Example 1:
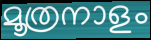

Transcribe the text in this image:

മൂത്രനാളം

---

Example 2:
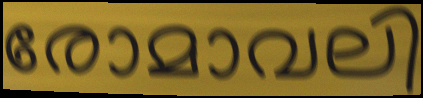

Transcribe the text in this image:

രോമാവലി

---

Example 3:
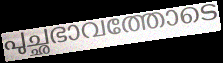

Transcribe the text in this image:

പുച്ഛഭാവത്തോടെ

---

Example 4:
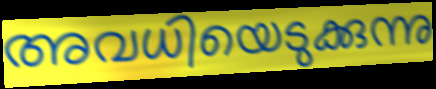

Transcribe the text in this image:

അവധിയെടുക്കുന്നു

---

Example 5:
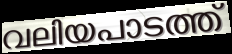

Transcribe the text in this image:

വലിയപാടത്ത്